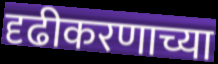
दृढीकरणाच्या